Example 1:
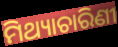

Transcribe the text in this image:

ମିଥ୍ୟାଚାରିଣୀ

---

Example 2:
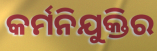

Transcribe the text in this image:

କର୍ମନିଯୁକ୍ତିର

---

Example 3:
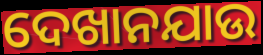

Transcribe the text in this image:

ଦେଖାନଯାଉ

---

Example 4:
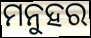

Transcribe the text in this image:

ମନୁହର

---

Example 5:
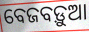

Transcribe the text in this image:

ବେଜବଡ଼ୁଆ